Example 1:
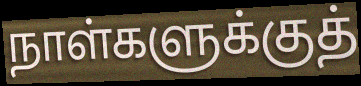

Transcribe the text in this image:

நாள்களுக்குத்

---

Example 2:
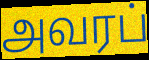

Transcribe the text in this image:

அவரப்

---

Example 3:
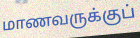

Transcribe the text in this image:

மாணவருக்குப்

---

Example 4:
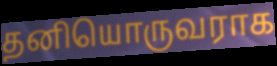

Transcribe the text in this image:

தனியொருவராக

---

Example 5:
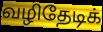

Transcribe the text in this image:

வழிதேடிக்